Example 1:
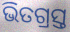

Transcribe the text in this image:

ଭିତଗ୍ରସ୍ତ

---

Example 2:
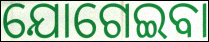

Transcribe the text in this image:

ଯୋଗେଇବା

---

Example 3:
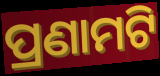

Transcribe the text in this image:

ପ୍ରଣାମଟି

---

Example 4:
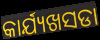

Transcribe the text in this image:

କାର୍ଯ୍ୟଖସଡା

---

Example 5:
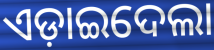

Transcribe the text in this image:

ଏଡ଼ାଇଦେଲା